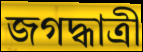
জগদ্ধাত্রী